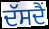
ਦੱਸਦੈਂ